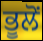
ਭੂਲੋਂ